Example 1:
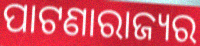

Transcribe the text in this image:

ପାଟଣାରାଜ୍ୟର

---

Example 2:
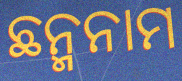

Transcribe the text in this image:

ଛନ୍ମନାମ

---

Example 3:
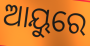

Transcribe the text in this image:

ଆୟୁରେ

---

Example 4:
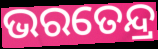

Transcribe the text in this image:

ଭରତେନ୍ଦ୍ର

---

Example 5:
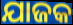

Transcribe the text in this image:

ଯାଜକ